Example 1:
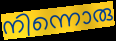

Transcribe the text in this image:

നിന്നൊരു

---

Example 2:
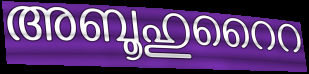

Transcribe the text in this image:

അബൂഹുറൈറ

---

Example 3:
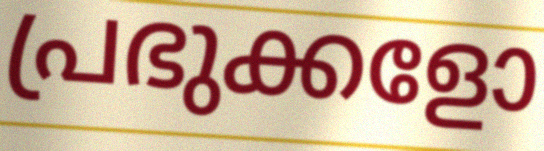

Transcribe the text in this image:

പ്രഭുക്കളോ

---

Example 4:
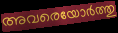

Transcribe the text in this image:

അവരെയോർത്തു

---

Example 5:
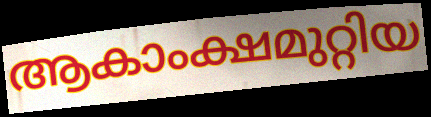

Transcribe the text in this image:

ആകാംക്ഷമുറ്റിയ